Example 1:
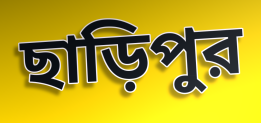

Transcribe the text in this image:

ছাড়িপুর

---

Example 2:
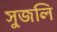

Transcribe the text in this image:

সুজলি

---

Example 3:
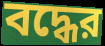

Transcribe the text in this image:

বদ্ধের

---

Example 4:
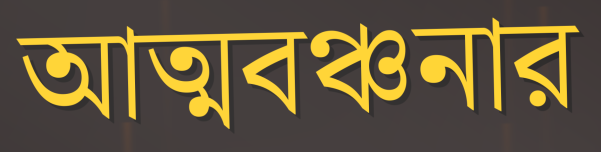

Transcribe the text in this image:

আত্মবঞ্চনার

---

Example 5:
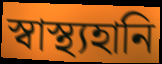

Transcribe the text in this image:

স্বাস্থ্যহানি